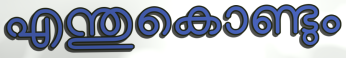
എന്തുകൊണ്ടും